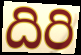
దిరి